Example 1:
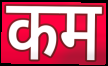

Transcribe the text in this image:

कम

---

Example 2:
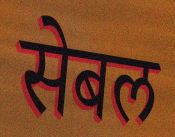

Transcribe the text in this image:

सेबल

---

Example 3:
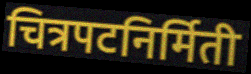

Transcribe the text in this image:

चित्रपटनिर्मिती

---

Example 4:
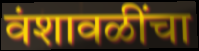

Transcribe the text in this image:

वंशावळींचा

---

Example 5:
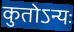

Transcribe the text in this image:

कुतोऽन्यः